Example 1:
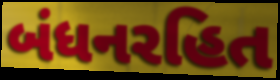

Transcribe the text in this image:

બંધનરહિત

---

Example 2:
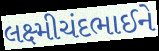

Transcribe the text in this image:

લક્ષ્મીચંદભાઈને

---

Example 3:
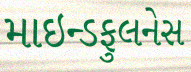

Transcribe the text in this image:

માઇન્ડફુલનેસ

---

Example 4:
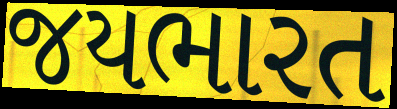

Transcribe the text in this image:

જયભારત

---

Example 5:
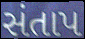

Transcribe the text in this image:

સંતાપ